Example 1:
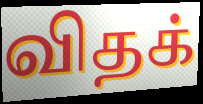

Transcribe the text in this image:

விதக்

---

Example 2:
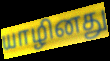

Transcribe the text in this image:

யாழினது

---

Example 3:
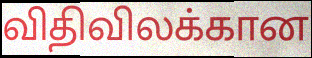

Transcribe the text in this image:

விதிவிலக்கான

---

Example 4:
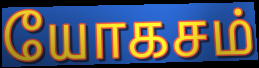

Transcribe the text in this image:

யோகசம்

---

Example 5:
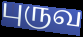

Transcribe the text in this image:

புருவ